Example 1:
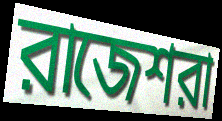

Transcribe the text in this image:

রাজেশরা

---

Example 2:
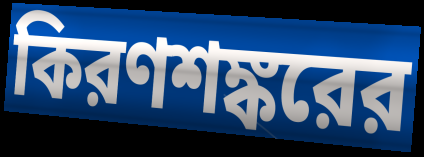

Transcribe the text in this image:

কিরণশঙ্করের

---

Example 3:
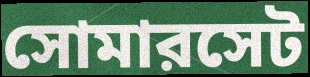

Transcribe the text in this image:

সোমারসেট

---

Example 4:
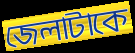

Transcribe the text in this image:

জেলাটাকে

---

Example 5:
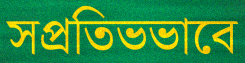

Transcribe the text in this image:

সপ্রতিভভাবে